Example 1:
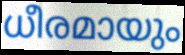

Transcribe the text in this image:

ധീരമായും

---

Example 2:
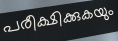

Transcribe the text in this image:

പരീക്ഷിക്കുകയും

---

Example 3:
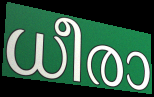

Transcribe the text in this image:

ധീരാ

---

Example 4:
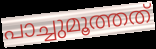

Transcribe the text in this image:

പാച്ചുമൂത്തത്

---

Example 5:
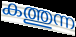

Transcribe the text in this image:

കത്തുന്ന